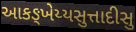
આકઙ્ખેય્યસુત્તાદીસુ